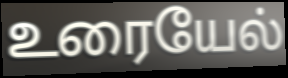
உரையேல்